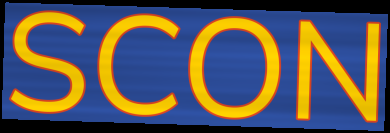
SCON